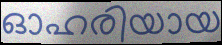
ഓഹരിയായ